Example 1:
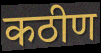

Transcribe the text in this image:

कठीण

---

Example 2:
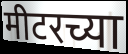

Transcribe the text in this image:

मीटरच्या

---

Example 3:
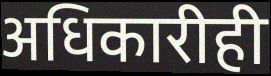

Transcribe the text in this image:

अधिकारीही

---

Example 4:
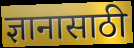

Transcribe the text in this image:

ज्ञानासाठी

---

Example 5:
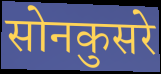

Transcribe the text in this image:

सोनकुसरे